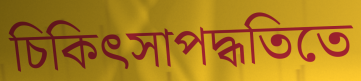
চিকিৎসাপদ্ধতিতে